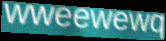
wweewewq